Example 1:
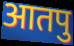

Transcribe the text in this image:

आतपु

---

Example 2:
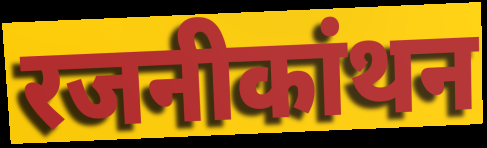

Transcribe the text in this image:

रजनीकांथन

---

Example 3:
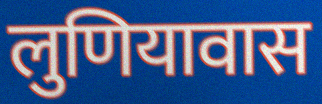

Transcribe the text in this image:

लुणियावास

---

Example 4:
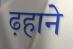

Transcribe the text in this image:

ढ़हाने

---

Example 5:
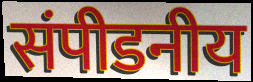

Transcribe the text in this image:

संपीडनीय